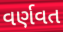
વર્ણવત